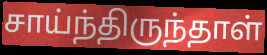
சாய்ந்திருந்தாள்